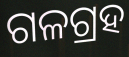
ଗଳଗ୍ରହ